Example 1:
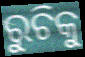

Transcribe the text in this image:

ରୁଚିକୁ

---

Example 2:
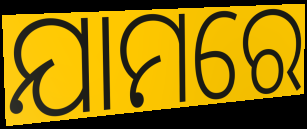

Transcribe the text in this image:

ଯାମରେ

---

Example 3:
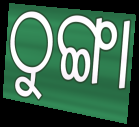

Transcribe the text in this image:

ଠୁଙ୍ଗା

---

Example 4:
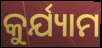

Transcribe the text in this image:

କୁର୍ଯ୍ୟାମ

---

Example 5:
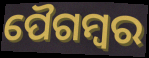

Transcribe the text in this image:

ପୈଗମ୍ବର